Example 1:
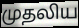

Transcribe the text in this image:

முதலிய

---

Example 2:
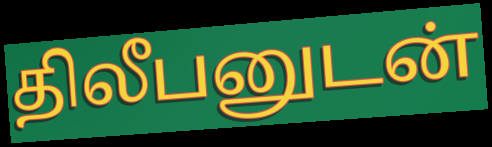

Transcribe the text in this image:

திலீபனுடன்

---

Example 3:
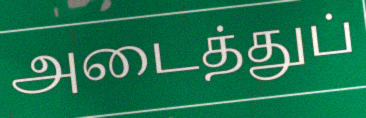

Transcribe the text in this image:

அடைத்துப்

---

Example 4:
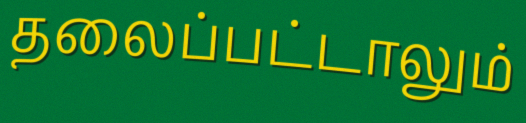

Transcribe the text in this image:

தலைப்பட்டாலும்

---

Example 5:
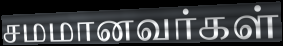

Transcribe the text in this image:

சமமானவர்கள்